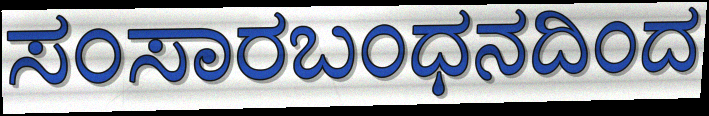
ಸಂಸಾರಬಂಧನದಿಂದ